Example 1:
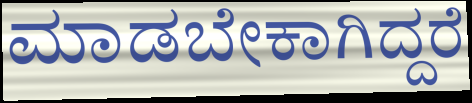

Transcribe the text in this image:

ಮಾಡಬೇಕಾಗಿದ್ದರೆ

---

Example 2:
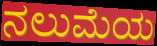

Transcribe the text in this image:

ನಲುಮೆಯ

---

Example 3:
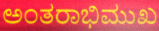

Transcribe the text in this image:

ಅಂತರಾಭಿಮುಖ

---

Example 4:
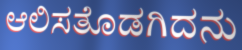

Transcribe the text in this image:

ಆಲಿಸತೊಡಗಿದನು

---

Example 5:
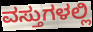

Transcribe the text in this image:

ವಸ್ತುಗಳಲ್ಲಿ